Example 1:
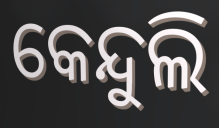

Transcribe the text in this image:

କେନ୍ଦୁଲି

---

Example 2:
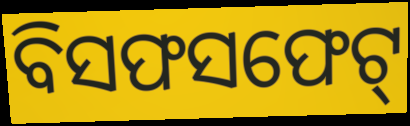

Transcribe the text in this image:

ବିସଫସଫେଟ୍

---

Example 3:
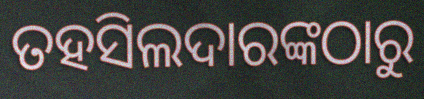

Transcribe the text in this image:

ତହସିଲଦାରଙ୍କଠାରୁ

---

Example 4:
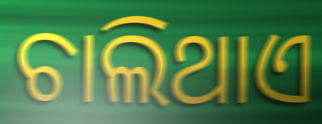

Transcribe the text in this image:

ଚାଲିଥାଏ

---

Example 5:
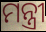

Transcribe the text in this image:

ମନ୍ତ୍ରୀ